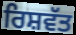
ਰਿਸ਼ਵੱਤ